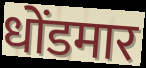
धोंडमार